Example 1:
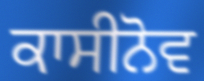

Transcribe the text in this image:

ਕਾਸੀਨੋਵ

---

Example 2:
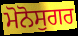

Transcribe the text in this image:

ਮੋਨੋਸੁਗਰ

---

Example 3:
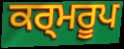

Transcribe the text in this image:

ਕਰ੍ਮਰੂਪ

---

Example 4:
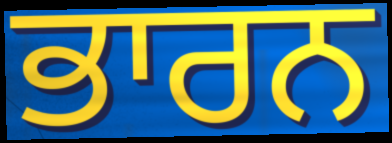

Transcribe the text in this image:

ਭਾਰਨ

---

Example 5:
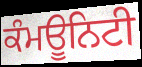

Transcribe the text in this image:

ਕੰਮਊਨਿਟੀ